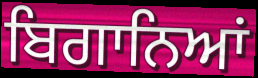
ਬਿਗਾਨਿਆਂ